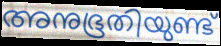
അനുഭൂതിയുണ്ട്